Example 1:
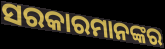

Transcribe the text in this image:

ସରକାରମାନଙ୍କର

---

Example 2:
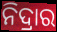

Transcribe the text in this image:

ନିଦ୍ରାର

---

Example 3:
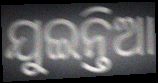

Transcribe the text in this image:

ଯୁଇନ୍ତିଆ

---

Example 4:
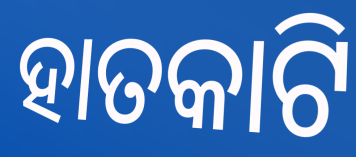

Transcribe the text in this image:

ହାତକାଟି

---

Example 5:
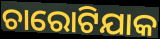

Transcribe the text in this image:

ଚାରୋଟିଯାକ